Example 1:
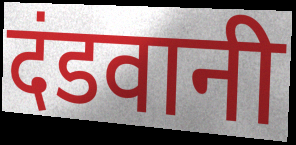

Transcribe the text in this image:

दंडवानी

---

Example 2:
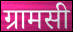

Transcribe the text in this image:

ग्रामसी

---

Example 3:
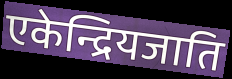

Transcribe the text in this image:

एकेन्द्रियजाति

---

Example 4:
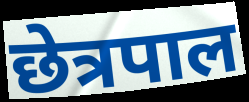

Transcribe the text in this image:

छेत्रपाल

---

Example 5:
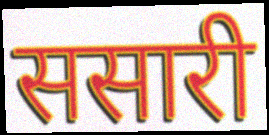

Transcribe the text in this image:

ससारी